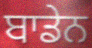
ਬਾਡੇਨ